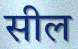
सील